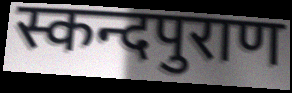
स्कन्दपुराण